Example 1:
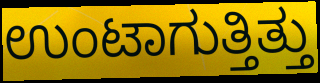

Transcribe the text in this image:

ಉಂಟಾಗುತ್ತಿತ್ತು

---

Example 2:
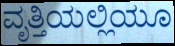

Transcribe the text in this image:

ವೃತ್ತಿಯಲ್ಲಿಯೂ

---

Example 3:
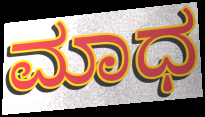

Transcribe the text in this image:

ಮಾಧ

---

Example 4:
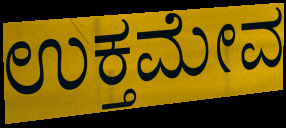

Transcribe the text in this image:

ಉಕ್ತಮೇವ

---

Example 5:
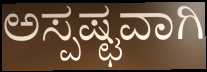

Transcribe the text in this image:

ಅಸ್ಪಷ್ಟವಾಗಿ